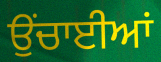
ਉਂਚਾਈਆਂ